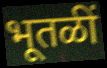
भूतळीं